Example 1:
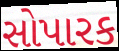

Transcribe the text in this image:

સોપારક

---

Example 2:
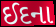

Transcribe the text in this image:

ઈદના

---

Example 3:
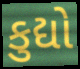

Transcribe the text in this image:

કુદ્યો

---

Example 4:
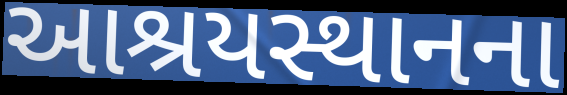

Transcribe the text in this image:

આશ્રયસ્થાનના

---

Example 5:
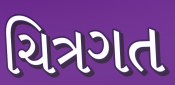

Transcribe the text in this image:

ચિત્રગત